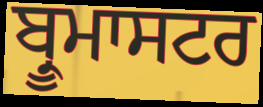
ਬ੍ਰੂਮਾਸਟਰ